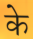
के